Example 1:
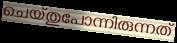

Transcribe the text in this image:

ചെയ്തുപോന്നിരുന്നത്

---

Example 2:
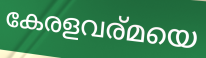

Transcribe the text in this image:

കേരളവര്മയെ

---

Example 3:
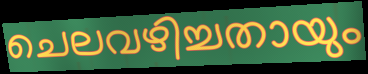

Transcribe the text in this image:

ചെലവഴിച്ചതായും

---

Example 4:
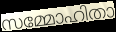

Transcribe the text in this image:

സമ്മോഹിതാ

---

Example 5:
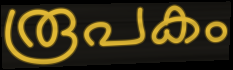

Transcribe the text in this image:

രൂപകം